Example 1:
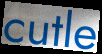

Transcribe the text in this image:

cutle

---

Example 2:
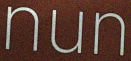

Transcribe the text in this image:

nun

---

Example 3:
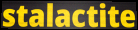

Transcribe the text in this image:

stalactite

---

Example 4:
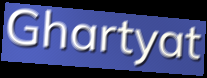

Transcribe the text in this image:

Ghartyat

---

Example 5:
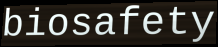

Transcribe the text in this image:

biosafety